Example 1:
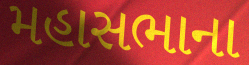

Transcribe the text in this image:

મહાસભાના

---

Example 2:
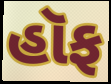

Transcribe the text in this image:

હૉફ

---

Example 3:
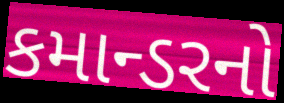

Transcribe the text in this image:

કમાન્ડરનો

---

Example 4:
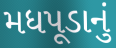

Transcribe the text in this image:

મધપૂડાનું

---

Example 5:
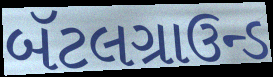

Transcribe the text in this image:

બૅટલગ્રાઉન્ડ